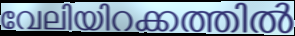
വേലിയിറക്കത്തിൽ